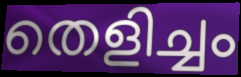
തെളിച്ചം